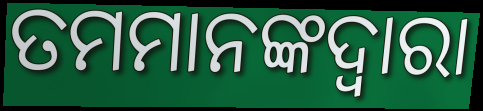
ତମମାନଙ୍କଦ୍ଵାରା